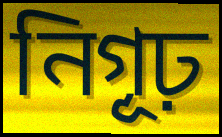
নিগূঢ়